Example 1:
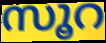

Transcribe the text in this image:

സൂറ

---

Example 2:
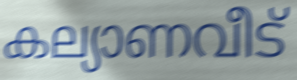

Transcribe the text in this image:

കല്യാണവീട്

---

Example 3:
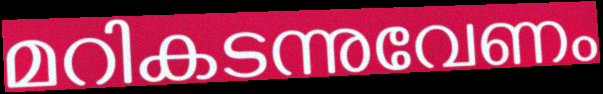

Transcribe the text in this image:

മറികടന്നുവേണം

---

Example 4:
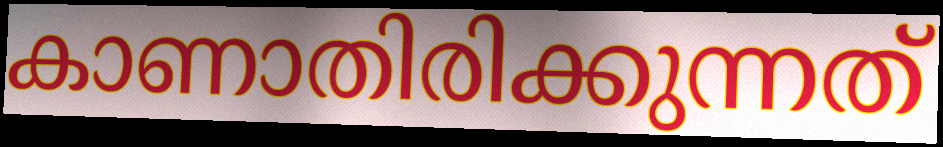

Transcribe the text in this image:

കാണാതിരിക്കുന്നത്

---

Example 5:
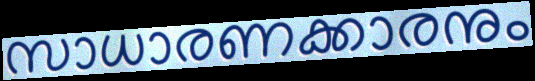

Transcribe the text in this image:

സാധാരണക്കാരനും